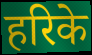
हरिके